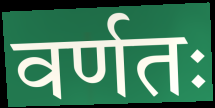
वर्णतः